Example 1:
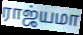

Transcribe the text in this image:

ராஜ்யமா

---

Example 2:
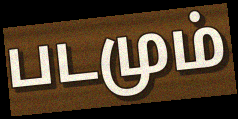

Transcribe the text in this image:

படமும்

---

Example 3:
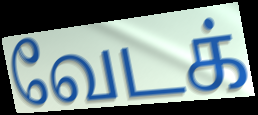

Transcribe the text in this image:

வேடக்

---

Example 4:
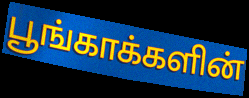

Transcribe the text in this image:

பூங்காக்களின்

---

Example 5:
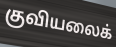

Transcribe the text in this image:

குவியலைக்